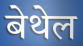
बेथेल